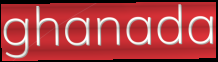
ghanada